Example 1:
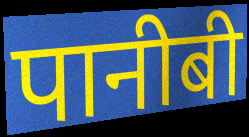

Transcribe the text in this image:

पानीबी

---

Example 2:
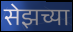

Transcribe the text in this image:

सेझच्या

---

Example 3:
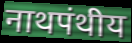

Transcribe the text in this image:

नाथपंथीय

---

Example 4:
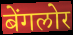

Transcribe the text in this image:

बेंगलोर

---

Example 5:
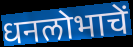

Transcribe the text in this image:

धनलोभाचें